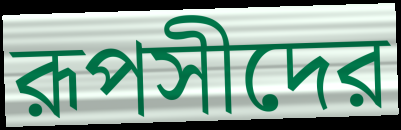
রূপসীদের